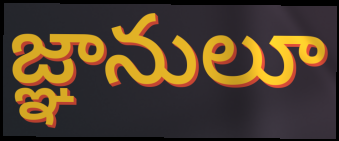
జ్ఞానులూ